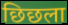
छिछला